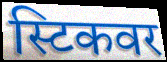
स्टिकवर